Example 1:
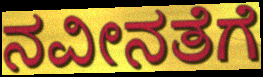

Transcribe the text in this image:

ನವೀನತೆಗೆ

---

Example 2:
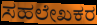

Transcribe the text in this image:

ಸಹಲೇಖಕರ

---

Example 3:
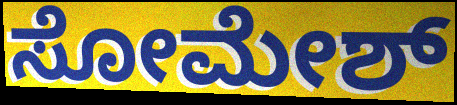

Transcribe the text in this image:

ಸೋಮೇಶ್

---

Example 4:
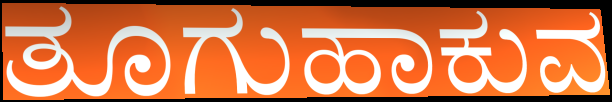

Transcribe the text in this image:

ತೂಗುಹಾಕುವ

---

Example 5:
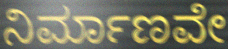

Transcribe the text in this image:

ನಿರ್ಮಾಣವೇ